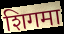
शिगमा